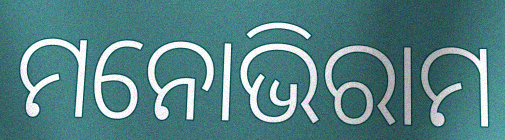
ମନୋଭିରାମ